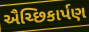
ઐચ્છિકાર્પણ